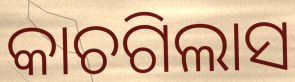
କାଚଗିଲାସ